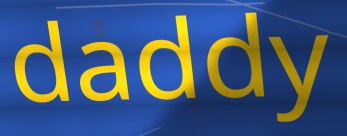
daddy